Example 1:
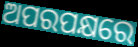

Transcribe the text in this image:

ଅପରପକ୍ଷରେ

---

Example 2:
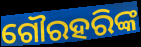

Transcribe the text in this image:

ଗୌରହରିଙ୍କ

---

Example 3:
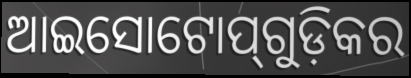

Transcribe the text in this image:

ଆଇସୋଟୋପ୍‌ଗୁଡ଼ିକର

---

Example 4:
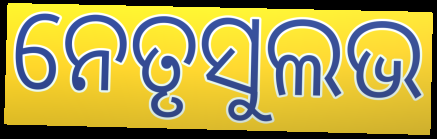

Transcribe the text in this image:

ନେତୃସୁଲଭ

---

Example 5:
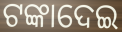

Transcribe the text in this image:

ଟଙ୍କାଦେଇ